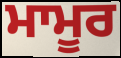
ਮਾਮੂਰ